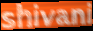
shivani